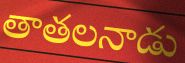
తాతలనాడు